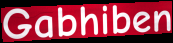
Gabhiben